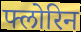
फ्लोरिन